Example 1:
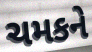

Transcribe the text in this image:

ચમકને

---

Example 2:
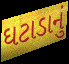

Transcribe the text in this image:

ઘટાડાનું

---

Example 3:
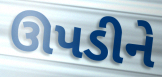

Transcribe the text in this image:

ઊપડીને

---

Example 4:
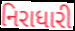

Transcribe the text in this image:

નિરાધારી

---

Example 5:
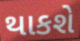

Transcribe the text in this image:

થાકશે